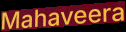
Mahaveera